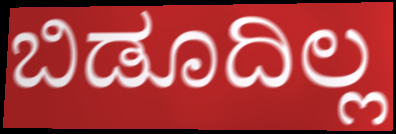
ಬಿಡೂದಿಲ್ಲ